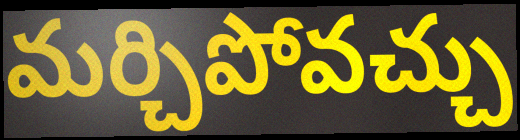
మర్చిపోవచ్చు